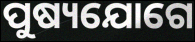
ପୁଷ୍ୟଯୋଗେ